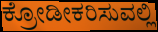
ಕ್ರೋಡೀಕರಿಸುವಲ್ಲಿ